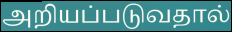
அறியப்படுவதால்